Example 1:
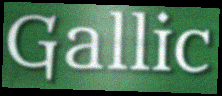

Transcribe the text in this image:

Gallic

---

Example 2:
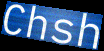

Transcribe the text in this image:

Chsh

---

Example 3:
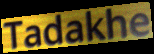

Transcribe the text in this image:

Tadakhe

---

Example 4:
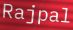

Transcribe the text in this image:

Rajpal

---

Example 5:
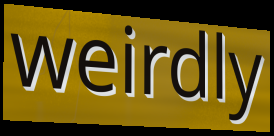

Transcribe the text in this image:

weirdly